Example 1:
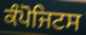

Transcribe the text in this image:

ਕੰਪੋਜਿਟਸ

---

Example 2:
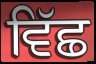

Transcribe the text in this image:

ਵਿੱਛ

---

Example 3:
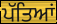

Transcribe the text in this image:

ਪੱਤਿਆਂ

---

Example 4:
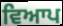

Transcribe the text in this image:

ਵਿਆਪ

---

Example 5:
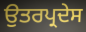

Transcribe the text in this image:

ਉਤਰਪ੍ਰਦੇਸ